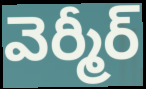
వెర్మీర్